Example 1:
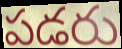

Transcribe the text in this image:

పడరు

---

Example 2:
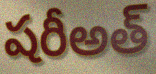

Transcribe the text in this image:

షరీఅత్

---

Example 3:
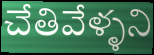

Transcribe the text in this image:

చేతివేళ్ళని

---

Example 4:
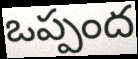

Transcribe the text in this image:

ఒప్పంద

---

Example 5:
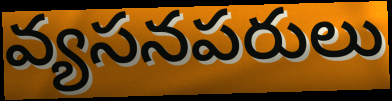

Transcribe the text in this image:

వ్యసనపరులు